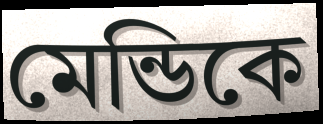
মেন্ডিকে